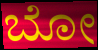
ಬೋ